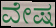
ವೇಷ